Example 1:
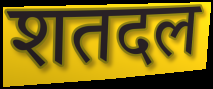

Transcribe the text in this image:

शतदल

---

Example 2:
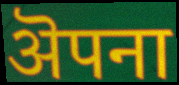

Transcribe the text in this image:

ऄपना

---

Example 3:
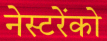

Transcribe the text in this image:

नेस्टरेंको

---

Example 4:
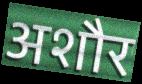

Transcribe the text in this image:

अशौर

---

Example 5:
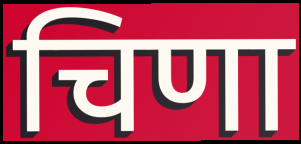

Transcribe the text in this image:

चिणा